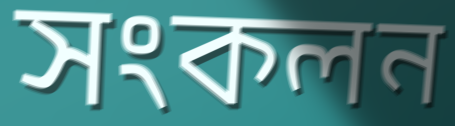
সংকলন